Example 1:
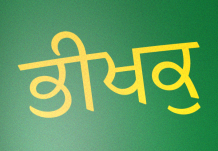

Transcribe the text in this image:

ਭੀਖਕੁ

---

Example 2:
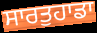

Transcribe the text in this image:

ਸਾਰਤੁਹਾਡਾ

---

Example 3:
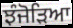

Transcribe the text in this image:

ਝੰਜੋੜਿਆ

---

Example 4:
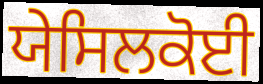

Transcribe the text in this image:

ਯੇਸਿਲਕੋਈ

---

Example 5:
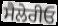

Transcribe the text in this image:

ਸੈਲੇਰੀਓ